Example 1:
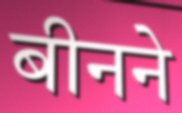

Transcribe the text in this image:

बीनने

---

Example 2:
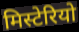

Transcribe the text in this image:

मिस्टेरियो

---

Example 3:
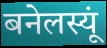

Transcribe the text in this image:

बनेलस्यूं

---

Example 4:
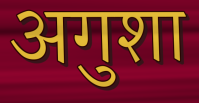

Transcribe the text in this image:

अगुशा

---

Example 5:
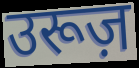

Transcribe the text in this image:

उरूज़